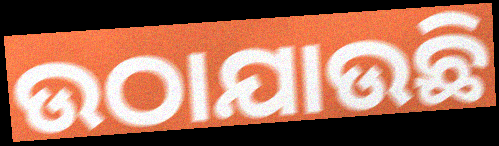
ଉଠାଯାଉଛି